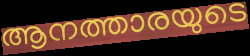
ആനത്താരയുടെ